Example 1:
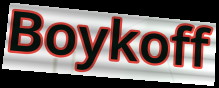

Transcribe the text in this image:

Boykoff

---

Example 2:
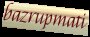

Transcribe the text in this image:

bazrupmati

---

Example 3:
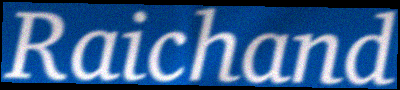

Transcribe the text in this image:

Raichand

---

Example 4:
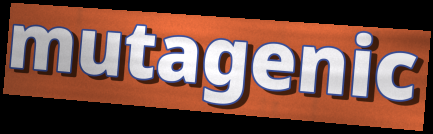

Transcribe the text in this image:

mutagenic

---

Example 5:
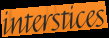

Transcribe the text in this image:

interstices